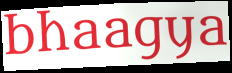
bhaagya